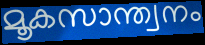
മൂകസാന്ത്വനം